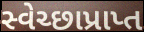
સ્વેચ્છાપ્રાપ્ત